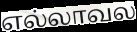
எல்லாவல